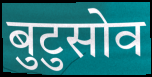
बुटुसोव